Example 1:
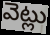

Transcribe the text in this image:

వెట్లు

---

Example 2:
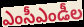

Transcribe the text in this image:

ఎంసీఎండీల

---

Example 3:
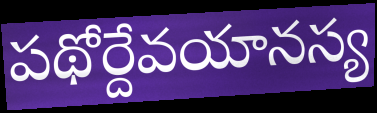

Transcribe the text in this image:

పథోర్దేవయానస్య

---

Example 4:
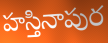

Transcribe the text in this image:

హస్తినాపుర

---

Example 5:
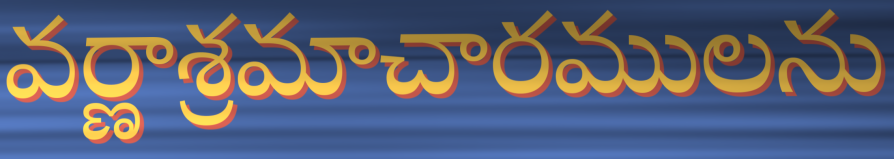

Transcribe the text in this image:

వర్ణాశ్రమాచారములను